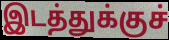
இடத்துக்குச்